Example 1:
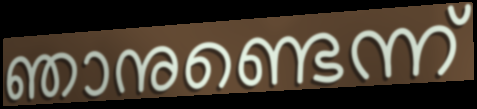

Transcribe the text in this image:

ഞാനുണ്ടെന്ന്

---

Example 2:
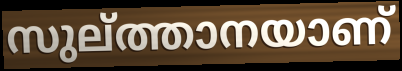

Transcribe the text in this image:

സുല്ത്താനയാണ്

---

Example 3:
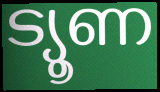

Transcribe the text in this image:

ട്യൂണ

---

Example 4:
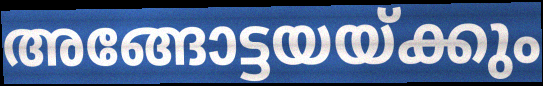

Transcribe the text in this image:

അങ്ങോട്ടയയ്ക്കും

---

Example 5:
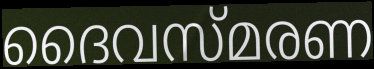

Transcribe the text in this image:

ദൈവസ്മരണ